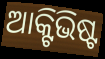
ଆକ୍ଟିଭିଷ୍ଟ